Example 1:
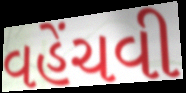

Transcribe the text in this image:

વહેંચવી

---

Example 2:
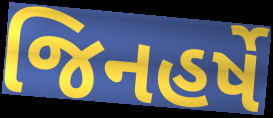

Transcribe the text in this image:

જિનહર્ષે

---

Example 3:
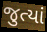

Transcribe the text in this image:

જુત્યાં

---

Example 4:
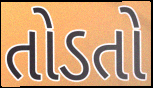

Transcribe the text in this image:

તોડતો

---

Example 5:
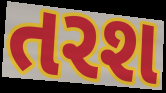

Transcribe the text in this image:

તરશ